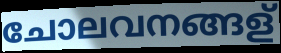
ചോലവനങ്ങള്